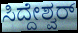
ಸಿದ್ದೇಶ್ವರ್